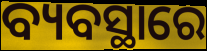
ବ୍ୟବସ୍ଥାରେ